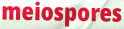
meiospores